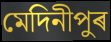
মেদিনীপুৰ